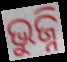
ଭୁଜ୍ନି